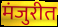
मंजुरीत